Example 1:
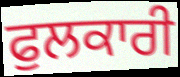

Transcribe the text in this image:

ਫੁਲਕਾਰੀ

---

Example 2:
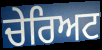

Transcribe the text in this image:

ਚੇਰਿਅਟ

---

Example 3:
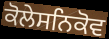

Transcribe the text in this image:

ਕੋਲੇਸਨਿਕੋਵ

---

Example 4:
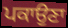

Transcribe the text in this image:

ਪਕਾਉਣਾ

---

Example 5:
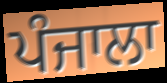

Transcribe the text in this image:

ਪੰਜਾਲਾ